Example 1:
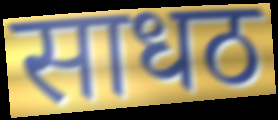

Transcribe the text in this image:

साधठ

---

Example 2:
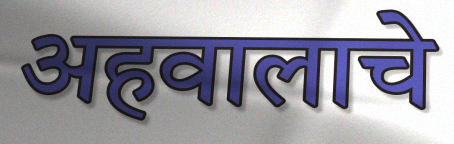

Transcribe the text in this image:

अहवालाचे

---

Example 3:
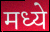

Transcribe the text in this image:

मध्ये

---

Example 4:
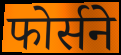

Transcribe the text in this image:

फोर्सने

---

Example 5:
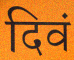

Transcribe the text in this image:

दिवं